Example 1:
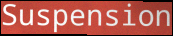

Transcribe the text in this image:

Suspension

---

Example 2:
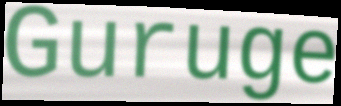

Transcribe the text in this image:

Guruge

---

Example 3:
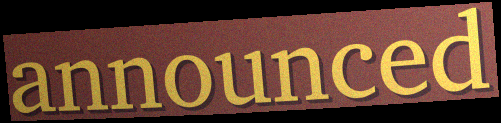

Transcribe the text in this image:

announced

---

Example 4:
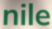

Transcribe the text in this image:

nile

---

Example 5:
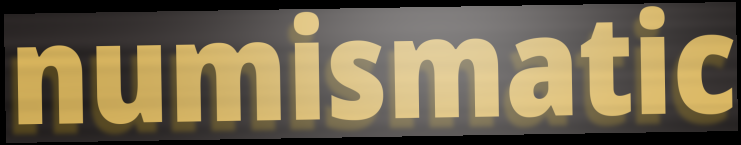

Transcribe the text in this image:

numismatic